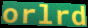
orlrd